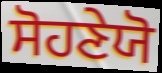
ਸੋਹਣੇਯੋ